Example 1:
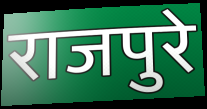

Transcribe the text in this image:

राजपुरे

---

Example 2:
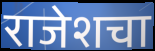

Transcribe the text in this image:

राजेशचा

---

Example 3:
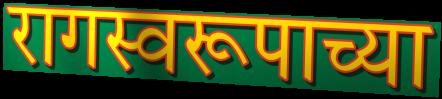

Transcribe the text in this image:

रागस्वरूपाच्या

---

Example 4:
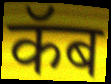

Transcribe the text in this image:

कॅब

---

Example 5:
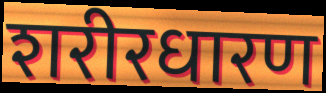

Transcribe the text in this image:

शरीरधारण